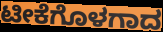
ಟೀಕೆಗೊಳಗಾದ